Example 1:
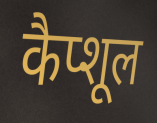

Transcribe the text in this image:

कैप्शूल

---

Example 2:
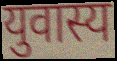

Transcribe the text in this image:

युवास्य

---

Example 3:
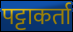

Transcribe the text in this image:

पट्टाकर्ता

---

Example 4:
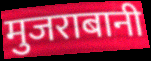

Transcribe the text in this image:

मुजराबानी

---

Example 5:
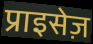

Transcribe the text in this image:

प्राइसेज़